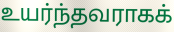
உயர்ந்தவராகக்